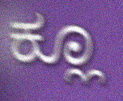
ಕ್ಲೂ